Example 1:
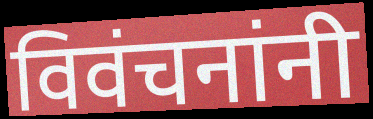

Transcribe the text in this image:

विवंचनांनी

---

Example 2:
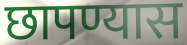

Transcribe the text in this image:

छापण्यास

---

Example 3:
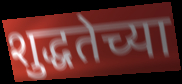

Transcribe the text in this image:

शुद्धतेच्या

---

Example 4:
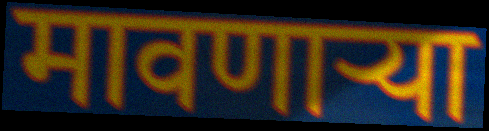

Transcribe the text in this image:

मावणाऱ्या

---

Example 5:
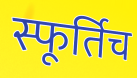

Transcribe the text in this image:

स्फूर्तिच